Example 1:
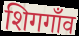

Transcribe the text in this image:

शिगगाँव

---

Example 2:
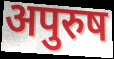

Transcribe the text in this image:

अपुरुष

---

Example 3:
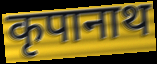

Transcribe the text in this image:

कृपानाथ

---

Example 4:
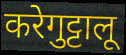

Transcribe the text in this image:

करेगुट्टालू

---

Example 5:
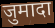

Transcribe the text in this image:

जुमादा